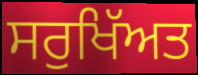
ਸਰੁਖਿੱਅਤ